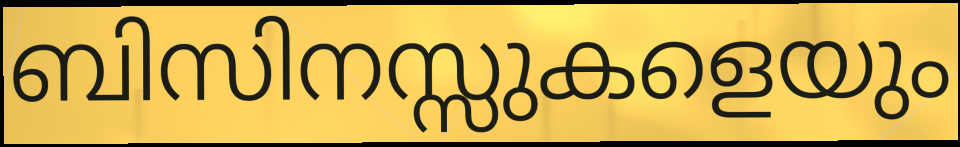
ബിസിനസ്സുകളെയും